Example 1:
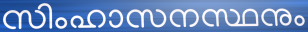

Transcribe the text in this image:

സിംഹാസനസ്ഥനും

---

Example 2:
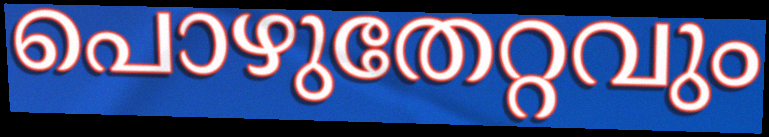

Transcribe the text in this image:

പൊഴുതേറ്റവും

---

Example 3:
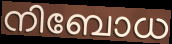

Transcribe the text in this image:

നിബോധ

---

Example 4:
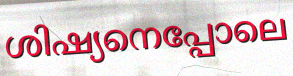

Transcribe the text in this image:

ശിഷ്യനെപ്പോലെ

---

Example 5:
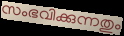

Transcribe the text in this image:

സംഭവിക്കുന്നതും